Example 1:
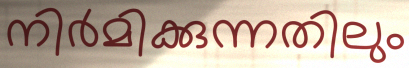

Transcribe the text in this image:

നിർമിക്കുന്നതിലും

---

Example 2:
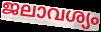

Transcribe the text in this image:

ജലാവശ്യം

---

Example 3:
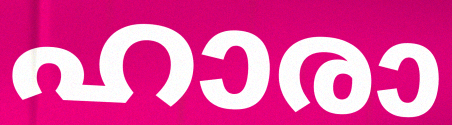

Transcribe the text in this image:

ഹാരാ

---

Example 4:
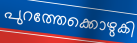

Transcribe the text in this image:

പുറത്തേക്കൊഴുകി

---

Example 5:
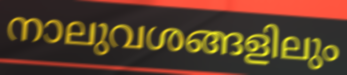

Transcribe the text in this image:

നാലുവശങ്ങളിലും